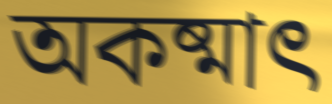
অকষ্মাৎ